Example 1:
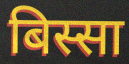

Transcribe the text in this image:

बिस्सा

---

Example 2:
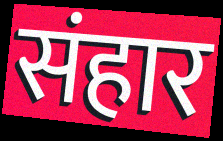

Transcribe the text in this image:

संहार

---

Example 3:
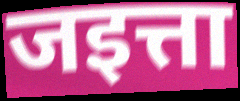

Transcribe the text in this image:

जइत्ता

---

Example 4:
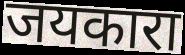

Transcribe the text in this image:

जयकारा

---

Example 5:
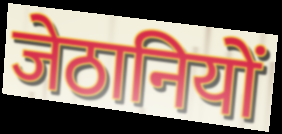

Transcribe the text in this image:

जेठानियों